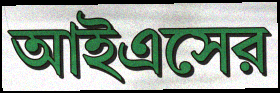
আইএসের